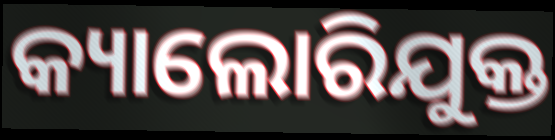
କ୍ୟାଲୋରିଯୁକ୍ତ